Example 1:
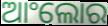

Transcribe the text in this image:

ଆଂଲୋର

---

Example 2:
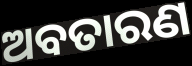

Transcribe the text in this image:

ଅବତାରଣ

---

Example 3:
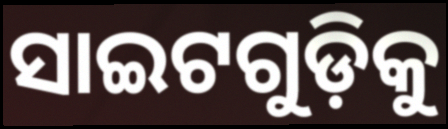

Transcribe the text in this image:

ସାଇଟଗୁଡ଼ିକୁ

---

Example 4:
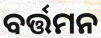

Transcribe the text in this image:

ବର୍ତ୍ତମନ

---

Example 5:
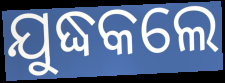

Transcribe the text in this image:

ଯୁଦ୍ଧକଲେ